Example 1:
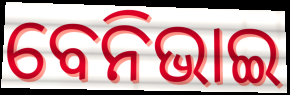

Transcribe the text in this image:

ବେନିଭାଇ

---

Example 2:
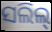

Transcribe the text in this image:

ସଲିଲ୍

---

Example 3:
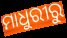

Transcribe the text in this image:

ମାଧୁରୀରୁ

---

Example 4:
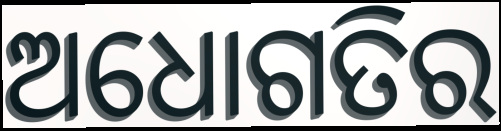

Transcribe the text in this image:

ଅଧୋଗତିର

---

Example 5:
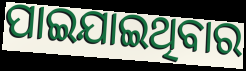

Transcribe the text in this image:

ପାଇଯାଇଥିବାର